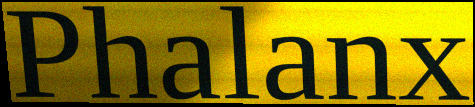
Phalanx